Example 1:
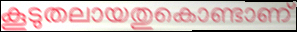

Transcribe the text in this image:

കൂടുതലായതുകൊണ്ടാണ്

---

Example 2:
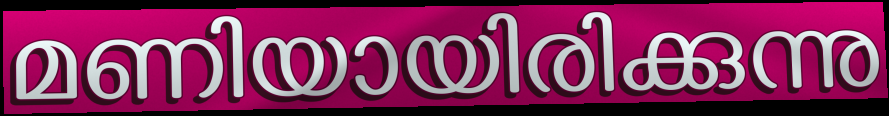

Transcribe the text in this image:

മണിയായിരിക്കുന്നു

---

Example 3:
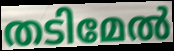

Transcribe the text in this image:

തടിമേൽ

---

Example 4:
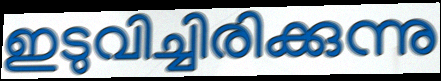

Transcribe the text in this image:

ഇടുവിച്ചിരിക്കുന്നു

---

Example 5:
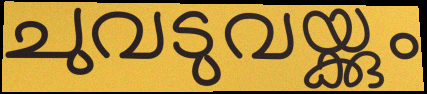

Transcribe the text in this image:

ചുവടുവയ്ക്കും